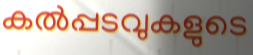
കൽപ്പടവുകളുടെ